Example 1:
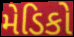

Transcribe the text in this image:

મેડિકો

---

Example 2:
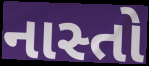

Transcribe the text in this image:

નાસ્તો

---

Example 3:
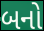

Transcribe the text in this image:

બનો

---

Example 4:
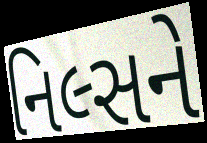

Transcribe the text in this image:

નિલ્સને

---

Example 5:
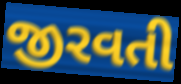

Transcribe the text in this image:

જીરવતી